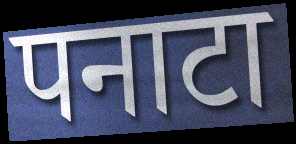
पनाटा